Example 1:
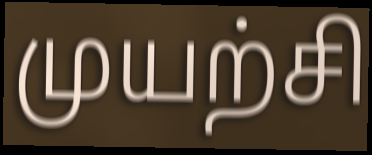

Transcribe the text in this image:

முயற்சி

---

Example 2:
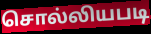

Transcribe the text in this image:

சொல்லியபடி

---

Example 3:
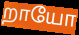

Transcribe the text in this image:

றாயோ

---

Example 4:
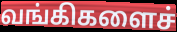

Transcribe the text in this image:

வங்கிகளைச்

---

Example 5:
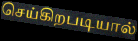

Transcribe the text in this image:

செய்கிறபடியால்